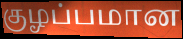
குழப்பமான